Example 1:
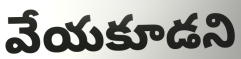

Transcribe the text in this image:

వేయకూడని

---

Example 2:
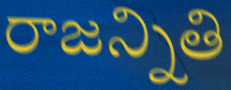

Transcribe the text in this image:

రాజన్నితి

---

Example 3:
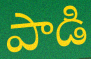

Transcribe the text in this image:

పాడి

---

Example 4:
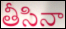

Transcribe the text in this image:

తీసినా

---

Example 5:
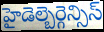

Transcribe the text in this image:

హైడెల్బెర్గెన్సిస్